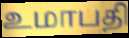
உமாபதி